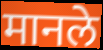
मानले